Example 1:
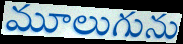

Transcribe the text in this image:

మూలుగును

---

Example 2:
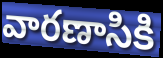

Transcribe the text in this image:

వారణాసికి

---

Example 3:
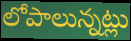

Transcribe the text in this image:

లోపాలున్నట్లు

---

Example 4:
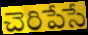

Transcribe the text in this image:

చెరిపేసే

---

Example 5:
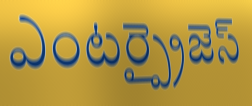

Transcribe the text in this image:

ఎంటర్ప్రైజెస్